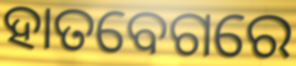
ହାତବେଗରେ